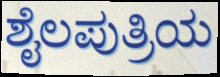
ಶೈಲಪುತ್ರಿಯ